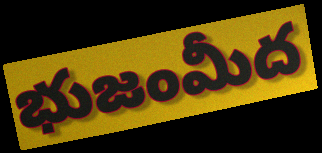
భుజంమీద